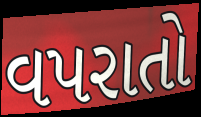
વપરાતો